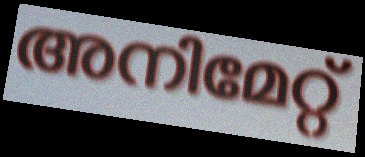
അനിമേറ്റ്